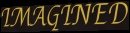
IMAGINED